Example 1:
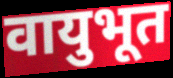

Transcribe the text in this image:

वायुभूत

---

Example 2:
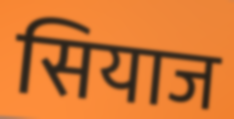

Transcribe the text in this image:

सियाज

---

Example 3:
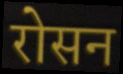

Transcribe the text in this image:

रोसन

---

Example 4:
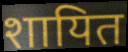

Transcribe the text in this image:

शायित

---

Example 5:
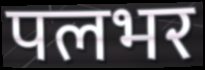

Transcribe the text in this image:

पलभर